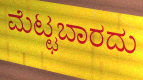
ಮೆಟ್ಟಬಾರದು